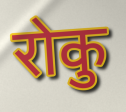
रोकु